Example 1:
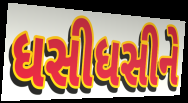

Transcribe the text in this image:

ધસીધસીને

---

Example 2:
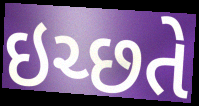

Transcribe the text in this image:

ઇચ્છતે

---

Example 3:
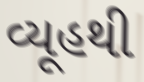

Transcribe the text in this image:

વ્યૂહથી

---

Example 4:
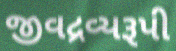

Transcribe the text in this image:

જીવદ્રવ્યરૂપી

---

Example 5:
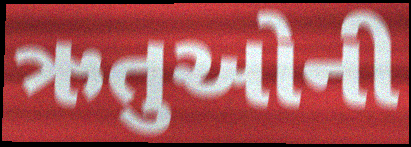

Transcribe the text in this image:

ઋતુઓની